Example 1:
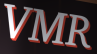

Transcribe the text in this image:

VMR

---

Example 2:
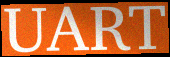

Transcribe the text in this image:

UART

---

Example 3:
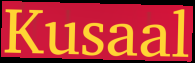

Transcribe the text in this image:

Kusaal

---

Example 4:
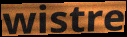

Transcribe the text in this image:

wistre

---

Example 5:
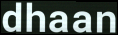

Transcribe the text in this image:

dhaan